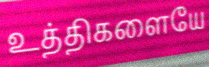
உத்திகளையே